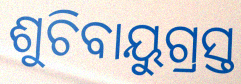
ଶୁଚିବାୟୁଗ୍ରସ୍ତ